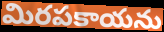
మిరపకాయను